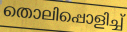
തൊലിപ്പൊളിച്ച്